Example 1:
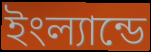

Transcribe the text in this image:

ইংল্যান্ডে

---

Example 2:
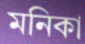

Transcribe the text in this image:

মনিকা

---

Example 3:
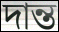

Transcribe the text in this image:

দান্ত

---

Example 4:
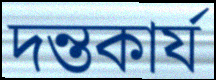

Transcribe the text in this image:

দন্তকার্য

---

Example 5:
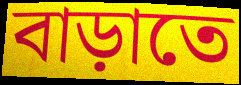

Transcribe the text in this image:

বাড়াতে